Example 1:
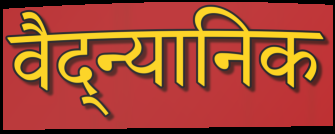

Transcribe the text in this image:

वैद्न्यानिक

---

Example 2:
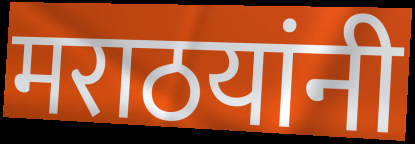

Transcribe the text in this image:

मराठयांनी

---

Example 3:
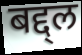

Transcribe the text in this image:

बद्द्ल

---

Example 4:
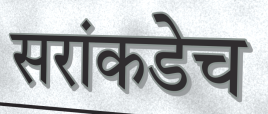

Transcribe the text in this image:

सरांकडेच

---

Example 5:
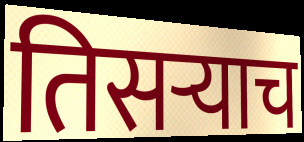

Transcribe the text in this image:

तिसर्‍याच